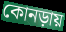
কোনড়ায়